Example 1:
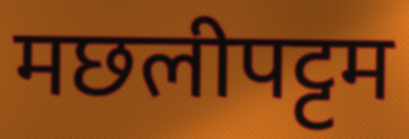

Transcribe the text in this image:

मछलीपट्टम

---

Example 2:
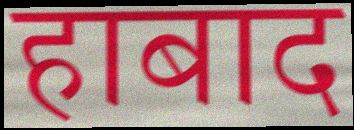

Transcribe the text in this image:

हाबाद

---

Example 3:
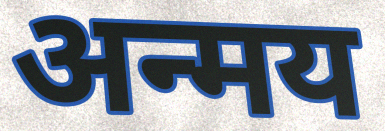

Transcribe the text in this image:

अन्मय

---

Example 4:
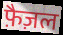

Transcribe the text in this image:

फ़ैज़ल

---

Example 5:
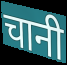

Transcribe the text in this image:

चानी